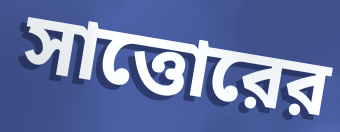
সাত্তোরের